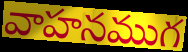
వాహనముగ